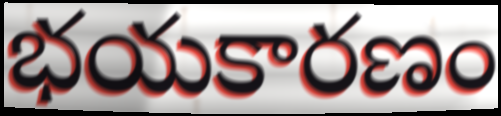
భయకారణం